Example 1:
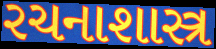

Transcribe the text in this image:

રચનાશાસ્ત્ર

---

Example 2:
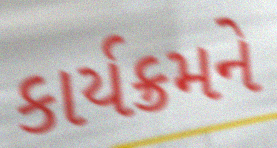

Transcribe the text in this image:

કાર્યક્રમને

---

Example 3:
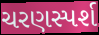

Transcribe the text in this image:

ચરણસ્પર્શ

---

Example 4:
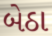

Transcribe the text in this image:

બેઠા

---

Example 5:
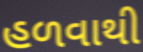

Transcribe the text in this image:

હળવાથી